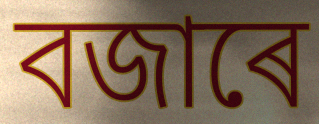
বজাৰে